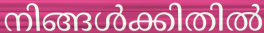
നിങ്ങൾക്കിതിൽ